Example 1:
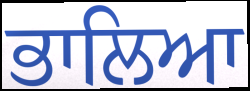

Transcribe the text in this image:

ਭਾਲਿਆ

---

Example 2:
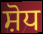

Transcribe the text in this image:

ਸ਼ੋਧ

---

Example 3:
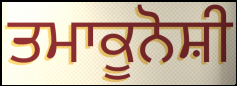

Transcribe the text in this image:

ਤਮਾਕੂਨੋਸ਼ੀ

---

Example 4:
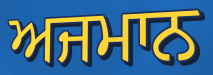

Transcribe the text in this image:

ਅਜਮਾਨ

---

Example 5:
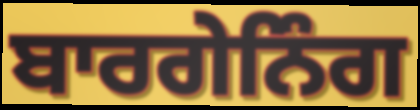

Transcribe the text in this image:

ਬਾਰਗੇਨਿੰਗ